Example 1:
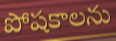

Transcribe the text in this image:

పోషకాలను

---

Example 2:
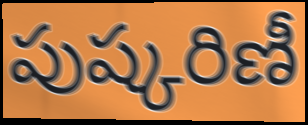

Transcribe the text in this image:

పుష్కరిణీ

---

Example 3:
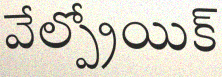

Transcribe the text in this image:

వేల్ప్రోయిక్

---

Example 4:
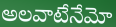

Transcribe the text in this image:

అలవాటేనేమో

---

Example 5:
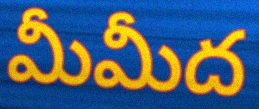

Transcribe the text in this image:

మీమీద